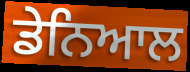
ਡੇਨਿਆਲ